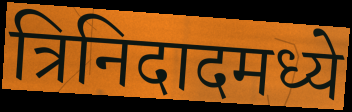
त्रिनिदादमध्ये